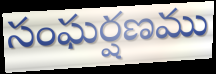
సంఘర్షణము